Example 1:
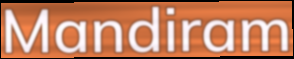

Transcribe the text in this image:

Mandiram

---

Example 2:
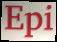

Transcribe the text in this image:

Epi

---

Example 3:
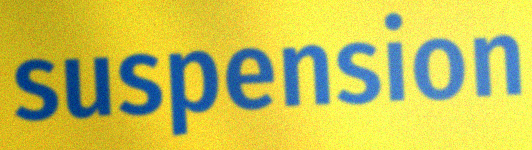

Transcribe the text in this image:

suspension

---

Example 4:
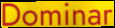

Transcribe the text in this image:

Dominar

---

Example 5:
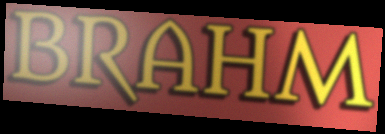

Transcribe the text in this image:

BRAHM